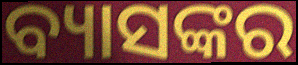
ବ୍ୟାସଙ୍କର